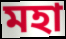
মহা